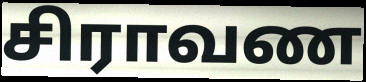
சிராவண